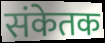
संकेतक